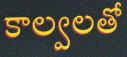
కాల్వలతో